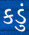
કડું